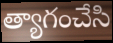
త్యాగంచేసి